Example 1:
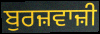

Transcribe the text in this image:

ਬੁਰਜ਼ਵਾਜ਼ੀ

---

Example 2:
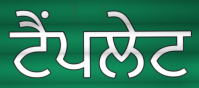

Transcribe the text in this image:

ਟੈਂਪਲੇਟ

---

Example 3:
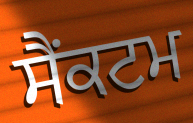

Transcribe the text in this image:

ਸੈੰਕਟਮ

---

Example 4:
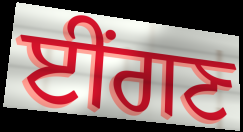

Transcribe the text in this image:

ਈਂਗਣ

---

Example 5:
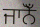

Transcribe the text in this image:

ਜਾਨੋਁ